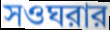
সওঘরার